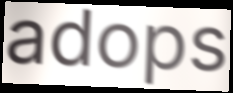
adops